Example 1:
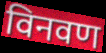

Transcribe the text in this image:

विनवण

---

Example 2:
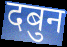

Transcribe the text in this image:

दबुन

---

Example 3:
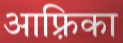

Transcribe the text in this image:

आफ़्रिका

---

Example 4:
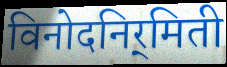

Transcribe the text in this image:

विनोदनिर्मिती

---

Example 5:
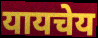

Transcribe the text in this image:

यायचेय